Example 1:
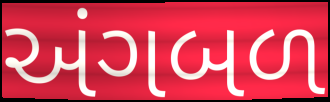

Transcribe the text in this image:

અંગબળ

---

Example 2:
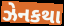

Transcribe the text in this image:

ઝેનકથા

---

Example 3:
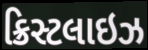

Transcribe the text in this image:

ક્રિસ્ટલાઇઝ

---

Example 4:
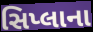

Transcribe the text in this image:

સિપ્લાના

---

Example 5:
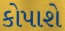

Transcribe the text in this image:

કોપાશે